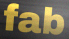
fab